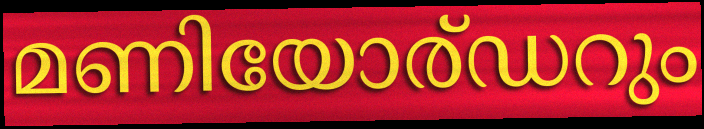
മണിയോര്ഡറും